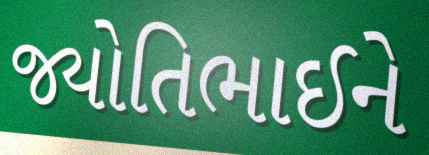
જ્યોતિભાઈને